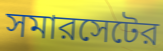
সমারসেটের